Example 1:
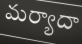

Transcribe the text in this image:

మర్యాదా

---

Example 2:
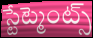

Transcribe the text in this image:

స్టేట్మెంట్స్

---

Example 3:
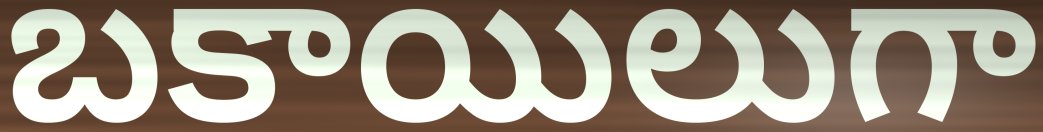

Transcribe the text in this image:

బకాయిలుగా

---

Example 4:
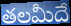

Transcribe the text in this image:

తలమీదే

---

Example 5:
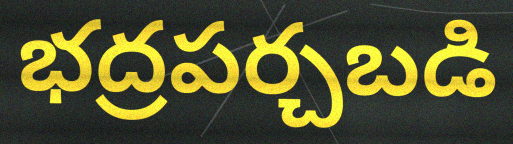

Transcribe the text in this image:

భద్రపర్చబడి